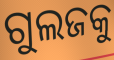
ଗୁଲଜକୁ